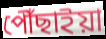
পৌঁছাইয়া